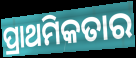
ପ୍ରାଥମିକତାର